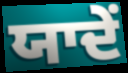
ਯਾਦੇਂ